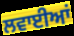
ਲਵਾਈਆਂ